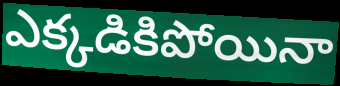
ఎక్కడికిపోయినా